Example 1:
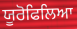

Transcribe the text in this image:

ਯੂਰੋਫਿਲਿਆ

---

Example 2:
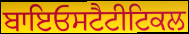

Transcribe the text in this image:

ਬਾਇਓਸਟੈਟੀਟਿਕਲ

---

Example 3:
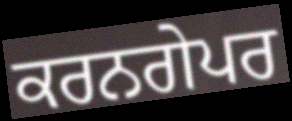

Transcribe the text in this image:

ਕਰਨਗੇਪਰ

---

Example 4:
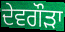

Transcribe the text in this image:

ਦੇਵਗੌੜਾ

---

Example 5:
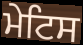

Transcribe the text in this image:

ਮੇਟਿਸ